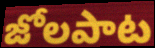
జోలపాట